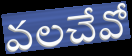
వలచేవో